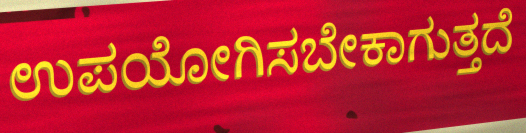
ಉಪಯೋಗಿಸಬೇಕಾಗುತ್ತದೆ